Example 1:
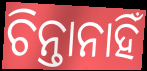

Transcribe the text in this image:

ଚିନ୍ତାନାହିଁ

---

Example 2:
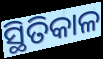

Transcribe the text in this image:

ସ୍ଥିତିକାଳ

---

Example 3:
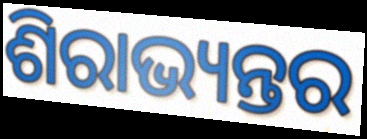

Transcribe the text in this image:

ଶିରାଭ୍ୟନ୍ତର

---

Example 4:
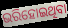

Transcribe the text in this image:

ଭରିହୋଇଥିବା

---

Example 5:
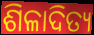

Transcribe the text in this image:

ଶିଳାଦିତ୍ୟ